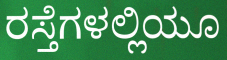
ರಸ್ತೆಗಳಲ್ಲಿಯೂ